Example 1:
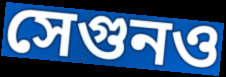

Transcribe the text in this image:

সেগুনও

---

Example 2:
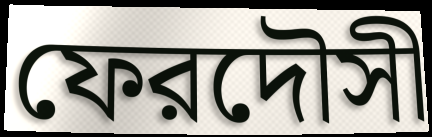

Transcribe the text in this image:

ফেরদৌসী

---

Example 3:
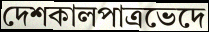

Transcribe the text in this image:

দেশকালপাত্রভেদে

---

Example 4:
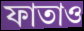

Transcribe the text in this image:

ফাতাও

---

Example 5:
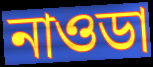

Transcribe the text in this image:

নাওডা